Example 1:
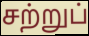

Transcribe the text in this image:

சற்றுப்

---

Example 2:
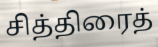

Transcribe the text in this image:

சித்திரைத்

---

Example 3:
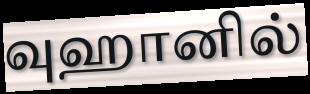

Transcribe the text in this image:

வுஹானில்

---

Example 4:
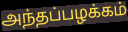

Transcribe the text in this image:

அந்தப்பழக்கம்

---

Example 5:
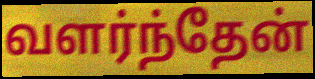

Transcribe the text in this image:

வளர்ந்தேன்